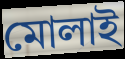
মোলাই